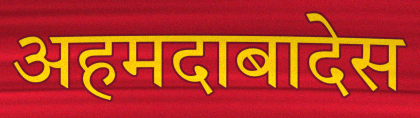
अहमदाबादेस